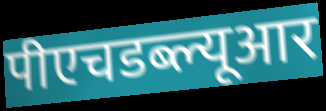
पीएचडब्ल्यूआर